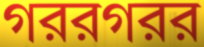
গররগরর